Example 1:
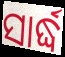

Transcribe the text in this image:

ସାର୍ଦ୍ଧ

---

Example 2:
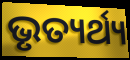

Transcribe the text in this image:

ଭୃତ୍ୟର୍ଥ୍ୟ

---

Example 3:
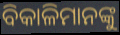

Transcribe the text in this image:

ବିକାଳିମାନଙ୍କୁ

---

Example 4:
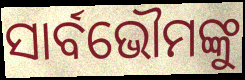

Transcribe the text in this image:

ସାର୍ବଭୌମଙ୍କୁ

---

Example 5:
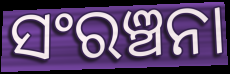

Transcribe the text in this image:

ସଂରଞ୍ଚନା